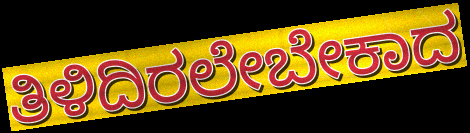
ತಿಳಿದಿರಲೇಬೇಕಾದ